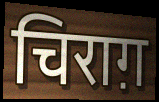
चिराग़